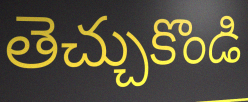
తెచ్చుకొండి